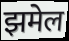
झमेल